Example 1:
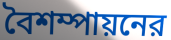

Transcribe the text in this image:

বৈশম্পায়নের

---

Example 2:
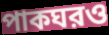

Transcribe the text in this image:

পাকঘরও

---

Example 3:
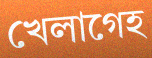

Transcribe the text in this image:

খেলাগেহ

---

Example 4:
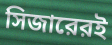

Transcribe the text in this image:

সিজারেরই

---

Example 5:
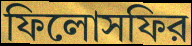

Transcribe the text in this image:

ফিলোসফির